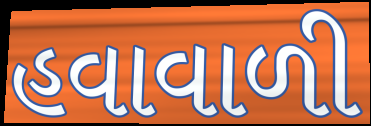
હવાવાળી